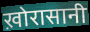
ख़ोरासानी